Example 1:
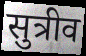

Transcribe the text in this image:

सुत्रीव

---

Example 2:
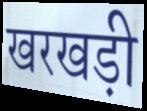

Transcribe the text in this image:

खरखड़ी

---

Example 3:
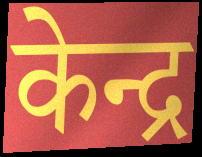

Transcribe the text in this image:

केन्द्र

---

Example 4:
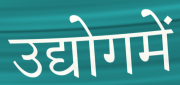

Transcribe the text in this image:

उद्योगमें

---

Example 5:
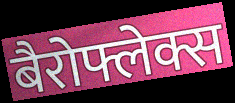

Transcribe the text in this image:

बैरोफ्लेक्स